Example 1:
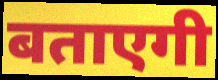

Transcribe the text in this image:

बताएगी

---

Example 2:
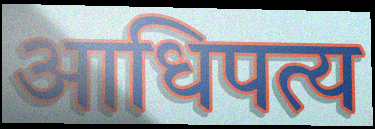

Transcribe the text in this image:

आधिपत्य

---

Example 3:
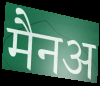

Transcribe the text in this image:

मैनअ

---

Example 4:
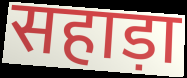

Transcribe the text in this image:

सहाड़ा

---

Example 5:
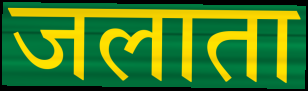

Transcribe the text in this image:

जलाता